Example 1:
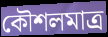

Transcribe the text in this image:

কৌশলমাত্র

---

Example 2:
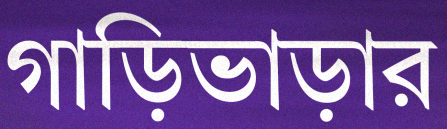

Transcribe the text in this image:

গাড়িভাড়ার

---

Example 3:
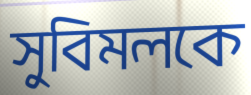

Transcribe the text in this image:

সুবিমলকে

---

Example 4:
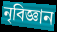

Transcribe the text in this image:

নৃবিজ্ঞান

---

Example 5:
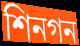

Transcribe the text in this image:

শিনগন